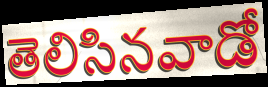
తెలిసినవాడో